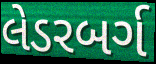
લેડરબર્ગ